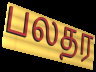
பலதர